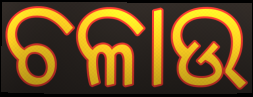
ଚଳାଉ